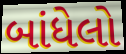
બાંધેલો